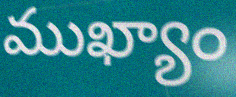
ముఖ్యాం